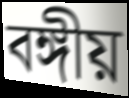
বঙ্গীয়